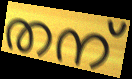
തന്